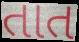
તાત